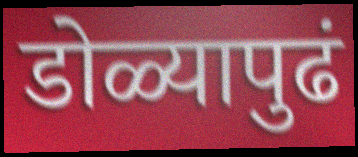
डोळ्यापुढं